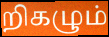
றிகழும்